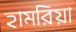
হামরিয়া